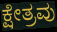
ಕ್ಷೇತ್ರವು